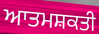
ਆਤਮਸ਼ਕਤੀ